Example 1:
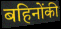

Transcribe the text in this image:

बहिनोंकी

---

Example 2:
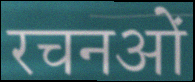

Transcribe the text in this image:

रचनओं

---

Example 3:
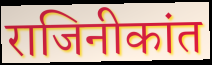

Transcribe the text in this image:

राजिनीकांत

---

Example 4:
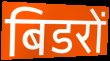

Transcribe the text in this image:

बिडरों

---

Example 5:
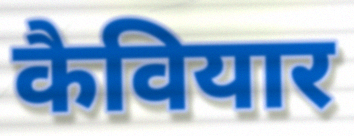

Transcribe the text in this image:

कैवियार